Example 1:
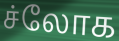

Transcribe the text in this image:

ச்லோக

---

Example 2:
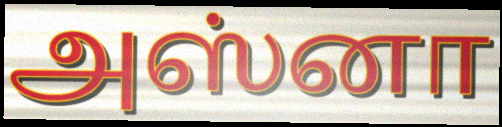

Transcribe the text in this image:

அஸ்னா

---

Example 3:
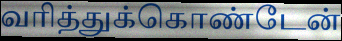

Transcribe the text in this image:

வரித்துக்கொண்டேன்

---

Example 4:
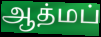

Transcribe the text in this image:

ஆத்மப்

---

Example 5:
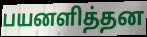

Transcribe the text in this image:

பயனளித்தன